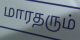
மாரதரும்